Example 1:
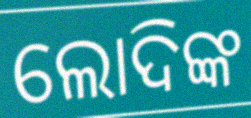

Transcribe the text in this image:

ଲୋଦିଙ୍କ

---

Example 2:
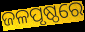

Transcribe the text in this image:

ଜଳପୃଷ୍ଠରେ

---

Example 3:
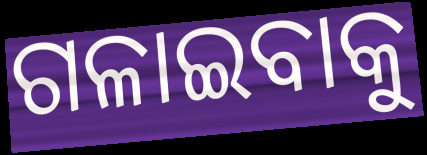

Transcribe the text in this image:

ଗଳାଇବାକୁ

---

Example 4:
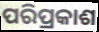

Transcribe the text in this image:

ପରିପ୍ରକାଶ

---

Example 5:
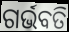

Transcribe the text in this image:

ଗର୍ଭବତି